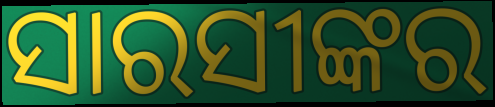
ସାରସୀଙ୍କର